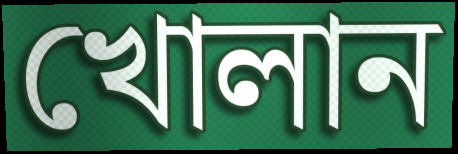
খোলান